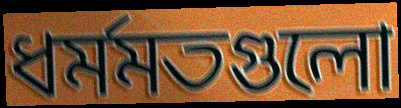
ধর্মমতগুলো